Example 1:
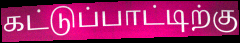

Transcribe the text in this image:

கட்டுப்பாட்டிற்கு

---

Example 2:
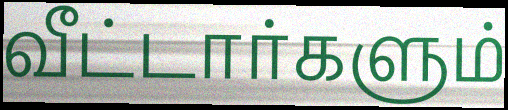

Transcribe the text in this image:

வீட்டார்களும்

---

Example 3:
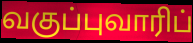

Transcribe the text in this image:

வகுப்புவாரிப்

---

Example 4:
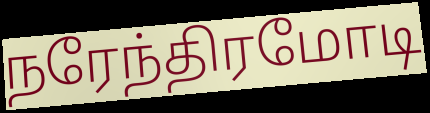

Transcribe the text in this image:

நரேந்திரமோடி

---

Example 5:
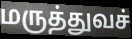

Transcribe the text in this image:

மருத்துவச்